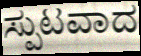
ಸ್ಪುಟವಾದ